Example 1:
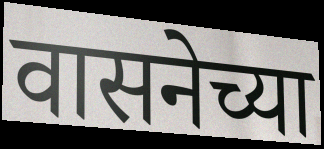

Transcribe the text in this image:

वासनेच्या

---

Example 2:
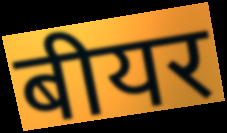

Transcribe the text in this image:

बीयर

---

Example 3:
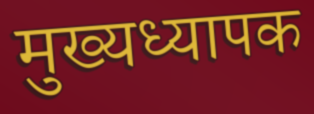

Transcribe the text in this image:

मुख्यध्यापक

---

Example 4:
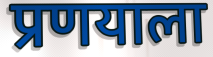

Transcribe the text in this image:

प्रणयाला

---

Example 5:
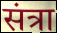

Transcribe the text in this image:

संत्रा